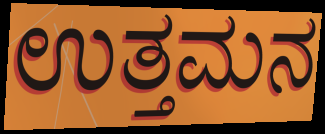
ಉತ್ತಮನ